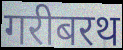
गरीबरथ